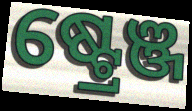
ଷ୍ଟ୍ରେଞ୍ଜ